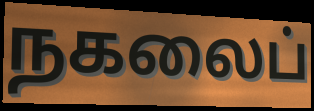
நகலைப்